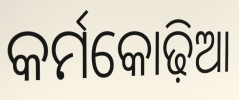
କର୍ମକୋଢ଼ିଆ